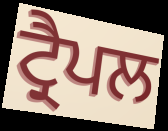
ਟ੍ਰੈਪਲ